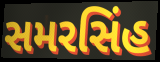
સમરસિંહ